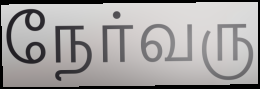
நேர்வரு